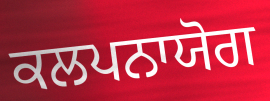
ਕਲਪਨਾਯੋਗ